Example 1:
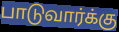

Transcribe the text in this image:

பாடுவார்க்கு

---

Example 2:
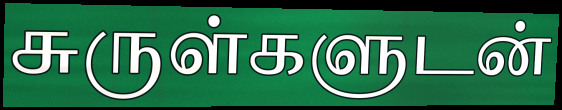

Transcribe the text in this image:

சுருள்களுடன்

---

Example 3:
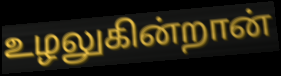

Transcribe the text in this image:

உழலுகின்றான்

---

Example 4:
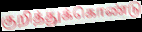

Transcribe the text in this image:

குறித்துக்கொண்டு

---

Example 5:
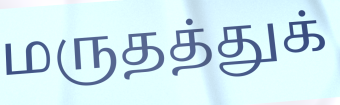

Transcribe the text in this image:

மருதத்துக்